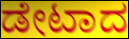
ಡೇಟಾದ